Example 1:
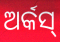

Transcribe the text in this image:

ଅର୍କସ୍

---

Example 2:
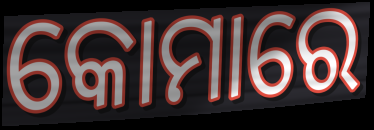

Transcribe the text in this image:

କୋମାରେ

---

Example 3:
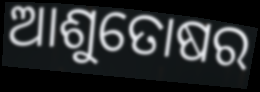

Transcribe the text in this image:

ଆଶୁତୋଷର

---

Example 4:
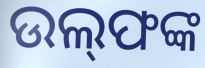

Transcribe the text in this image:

ଉଲ୍‌ଫଙ୍କ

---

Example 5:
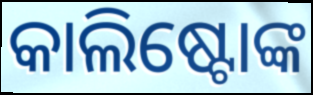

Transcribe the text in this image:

କାଲିଷ୍ଟୋଙ୍କ